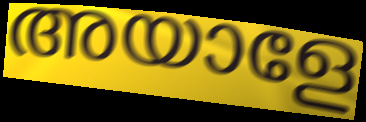
അയാളേ